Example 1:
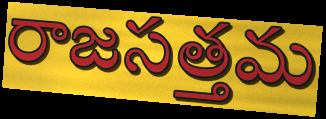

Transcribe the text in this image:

రాజసత్తమ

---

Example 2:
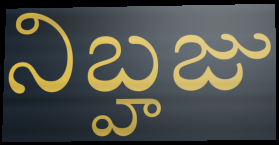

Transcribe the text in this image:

నిబ్హజు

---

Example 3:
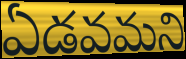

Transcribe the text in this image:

ఏడవమని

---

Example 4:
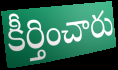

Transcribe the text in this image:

కీర్తించారు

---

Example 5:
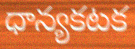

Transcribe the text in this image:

ధాన్యకటక